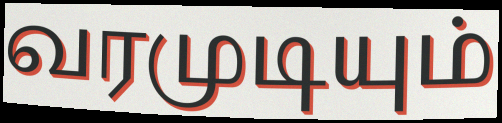
வரமுடியும்